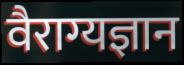
वैराग्यज्ञान